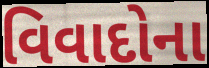
વિવાદોના